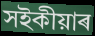
সইকীয়াৰ